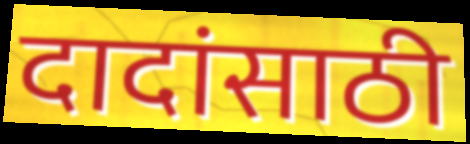
दादांसाठी